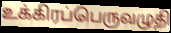
உக்கிரப்பெருவழுதி